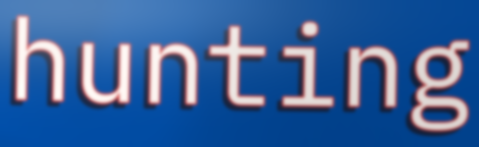
hunting